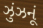
ઝુંઝનૂં